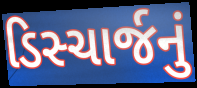
ડિસ્ચાર્જનું